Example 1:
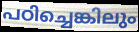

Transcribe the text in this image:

പഠിച്ചെങ്കിലും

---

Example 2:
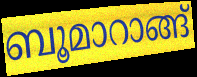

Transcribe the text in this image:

ബൂമാറാങ്ങ്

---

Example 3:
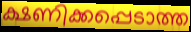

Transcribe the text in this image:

ക്ഷണിക്കപ്പെടാത്ത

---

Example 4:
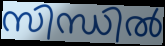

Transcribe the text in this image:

സിന്ധിൽ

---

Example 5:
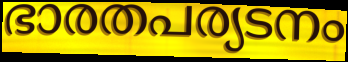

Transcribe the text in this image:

ഭാരതപര്യടനം